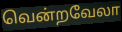
வென்றவேலா